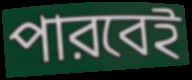
পারবেই